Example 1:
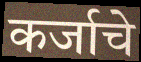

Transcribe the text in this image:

कर्जाचे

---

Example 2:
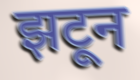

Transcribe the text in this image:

झटून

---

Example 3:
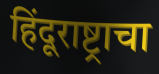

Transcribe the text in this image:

हिंदूराष्ट्राचा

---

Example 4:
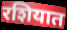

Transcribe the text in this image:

रशियात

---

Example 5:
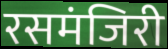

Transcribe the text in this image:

रसमंजिरी